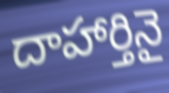
దాహార్తినై